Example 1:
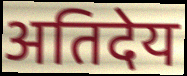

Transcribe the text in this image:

अतिदेय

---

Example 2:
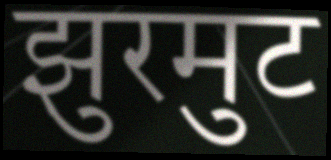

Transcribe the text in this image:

झुरमुट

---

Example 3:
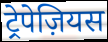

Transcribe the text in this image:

ट्रेपेज़ियस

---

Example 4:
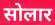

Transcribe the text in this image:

सोलार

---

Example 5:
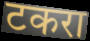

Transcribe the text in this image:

टकरा